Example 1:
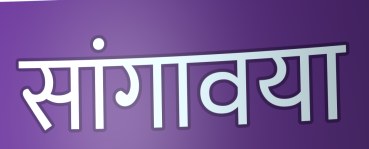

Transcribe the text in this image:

सांगावया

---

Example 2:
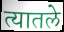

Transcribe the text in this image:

त्‍यातले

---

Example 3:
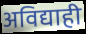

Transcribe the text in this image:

अविद्याही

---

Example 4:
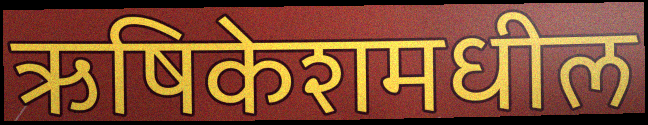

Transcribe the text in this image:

ऋषिकेशमधील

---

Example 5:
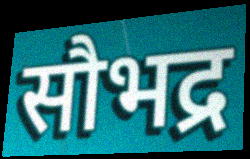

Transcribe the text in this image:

सौभद्र